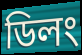
ডিলং